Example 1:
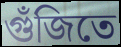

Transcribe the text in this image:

গুঁজিতে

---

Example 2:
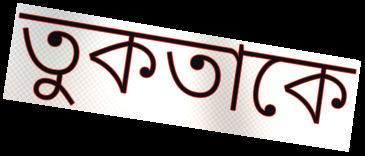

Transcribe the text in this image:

তুকতাকে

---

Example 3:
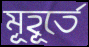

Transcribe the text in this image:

মূহূর্তে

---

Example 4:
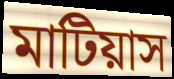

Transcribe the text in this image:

মাটিয়াস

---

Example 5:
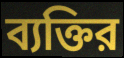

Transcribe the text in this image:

ব্যক্তির